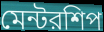
মেন্টরশিপ